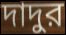
দাদুর